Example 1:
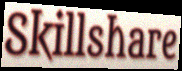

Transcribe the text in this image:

Skillshare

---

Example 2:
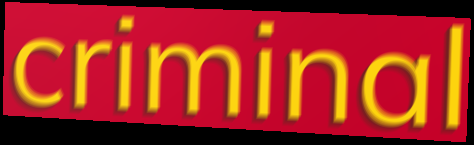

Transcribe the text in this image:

criminal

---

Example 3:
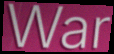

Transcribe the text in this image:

War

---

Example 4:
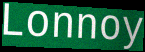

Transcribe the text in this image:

Lonnoy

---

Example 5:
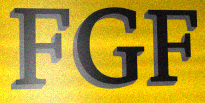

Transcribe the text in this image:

FGF